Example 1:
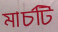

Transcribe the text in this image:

মার্চটি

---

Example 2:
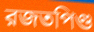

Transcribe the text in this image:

রজতপিণ্ড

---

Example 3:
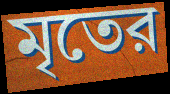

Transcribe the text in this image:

মৃতের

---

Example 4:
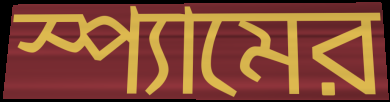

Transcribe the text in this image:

স্প্যামের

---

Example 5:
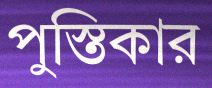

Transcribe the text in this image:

পুস্তিকার